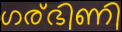
ഗര്ഭിണി